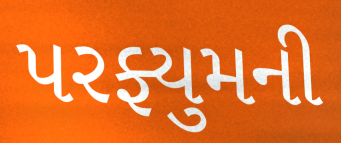
પરફ્યુમની